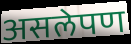
असलेपण